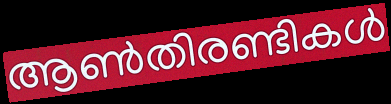
ആൺതിരണ്ടികൾ